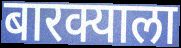
बारक्याला